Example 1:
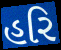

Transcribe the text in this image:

હરિ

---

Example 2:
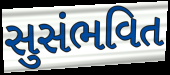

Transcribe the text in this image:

સુસંભવિત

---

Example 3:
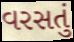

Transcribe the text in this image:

વરસતું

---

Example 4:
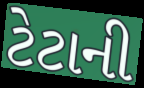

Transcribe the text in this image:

ટેટાની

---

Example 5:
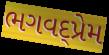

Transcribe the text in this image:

ભગવદ્પ્રેમ